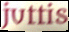
juttis